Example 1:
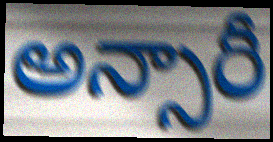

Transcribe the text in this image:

అన్సారీ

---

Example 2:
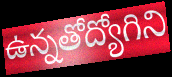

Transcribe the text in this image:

ఉన్నతోద్యోగిని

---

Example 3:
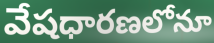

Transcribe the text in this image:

వేషధారణలోనూ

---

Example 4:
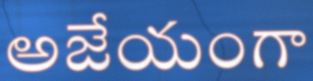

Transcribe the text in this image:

అజేయంగా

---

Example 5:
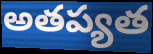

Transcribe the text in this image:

అతప్యత